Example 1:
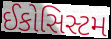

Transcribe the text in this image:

ઈકોસિસ્ટમ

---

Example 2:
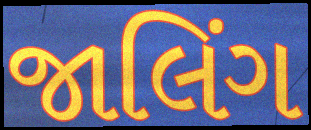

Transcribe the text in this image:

જાલિંગ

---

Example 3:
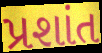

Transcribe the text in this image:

પ્રશાંત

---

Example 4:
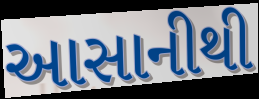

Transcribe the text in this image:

આસાનીથી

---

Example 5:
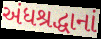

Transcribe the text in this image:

અંધશ્રદ્ધાનાં